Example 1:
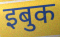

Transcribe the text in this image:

इबुक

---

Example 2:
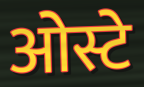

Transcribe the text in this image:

ओस्टे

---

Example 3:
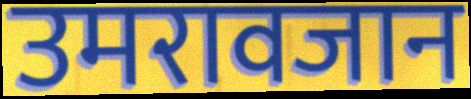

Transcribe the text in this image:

उमरावजान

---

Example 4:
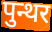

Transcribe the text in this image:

पुन्थर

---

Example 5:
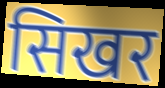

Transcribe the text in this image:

सिखर